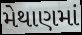
મેથાણમાં